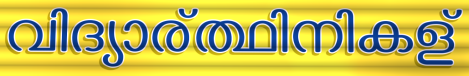
വിദ്യാര്ത്ഥിനികള്